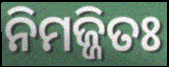
ନିମଜ୍ଜିତଃ